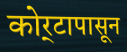
कोर्टापासून